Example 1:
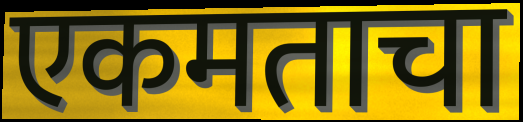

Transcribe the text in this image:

एकमताचा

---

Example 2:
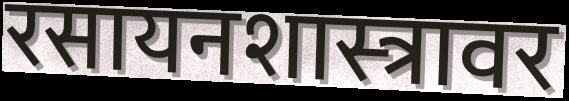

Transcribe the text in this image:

रसायनशास्त्रावर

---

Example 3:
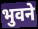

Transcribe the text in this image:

भुवने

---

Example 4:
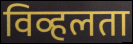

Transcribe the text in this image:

विव्हलता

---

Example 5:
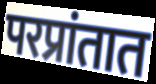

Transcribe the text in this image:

परप्रांतात